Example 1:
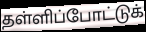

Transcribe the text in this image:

தள்ளிப்போட்டுக்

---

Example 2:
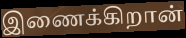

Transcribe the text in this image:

இணைக்கிறான்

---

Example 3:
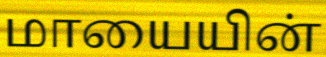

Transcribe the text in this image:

மாயையின்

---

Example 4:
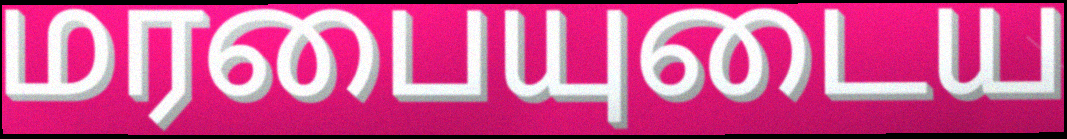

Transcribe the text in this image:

மரபையுடைய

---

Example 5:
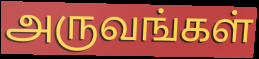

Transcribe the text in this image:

அருவங்கள்